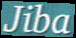
Jiba